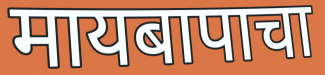
मायबापाचा